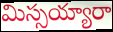
మిస్సయ్యారా